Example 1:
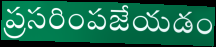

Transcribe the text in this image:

ప్రసరింపజేయడం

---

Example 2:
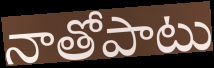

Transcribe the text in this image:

నాతోపాటు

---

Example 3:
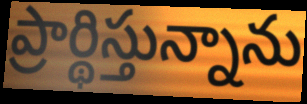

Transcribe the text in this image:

ప్రార్థిస్తున్నాను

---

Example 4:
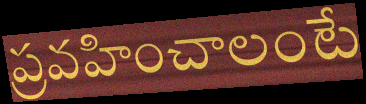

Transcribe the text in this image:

ప్రవహించాలంటే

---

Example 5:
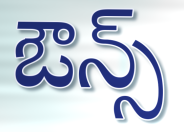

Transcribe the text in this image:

ఔన్స్